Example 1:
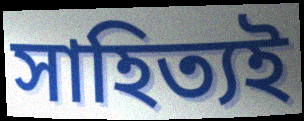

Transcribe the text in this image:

সাহিত্যই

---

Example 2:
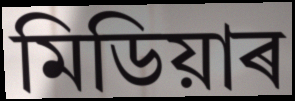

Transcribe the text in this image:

মিডিয়াৰ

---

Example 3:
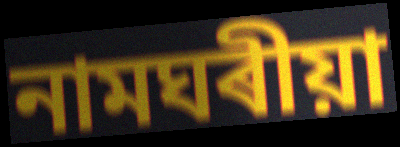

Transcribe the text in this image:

নামঘৰীয়া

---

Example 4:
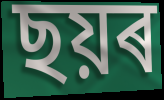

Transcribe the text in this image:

ছয়ৰ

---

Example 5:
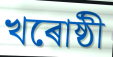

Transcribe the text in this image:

খৰোষ্ঠী